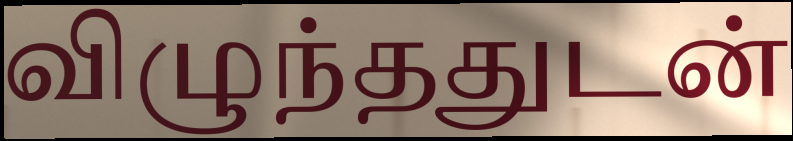
விழுந்ததுடன்